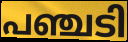
പഞ്ചടി